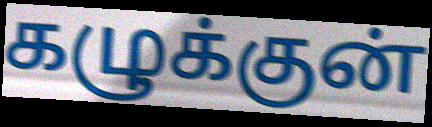
கழுக்குன்